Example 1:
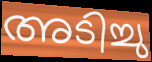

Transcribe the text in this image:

അടിച്ചു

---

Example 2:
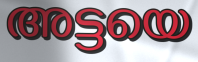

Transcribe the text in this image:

അട്ടയെ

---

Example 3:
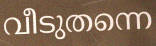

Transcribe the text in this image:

വീടുതന്നെ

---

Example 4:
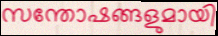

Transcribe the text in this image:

സന്തോഷങ്ങളുമായി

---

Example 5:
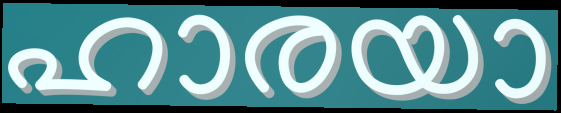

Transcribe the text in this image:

ഹാരയാ